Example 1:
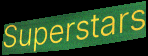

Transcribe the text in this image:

Superstars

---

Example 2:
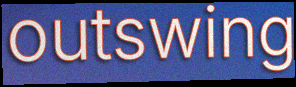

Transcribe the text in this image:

outswing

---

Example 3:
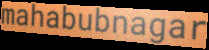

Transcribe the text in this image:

mahabubnagar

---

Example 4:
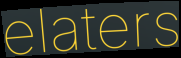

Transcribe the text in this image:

elaters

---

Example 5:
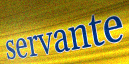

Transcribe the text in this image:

servante